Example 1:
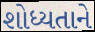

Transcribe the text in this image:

શોધ્યતાને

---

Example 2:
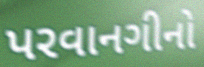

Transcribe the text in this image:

પરવાનગીનો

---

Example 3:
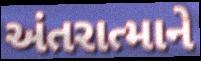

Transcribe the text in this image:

અંતરાત્માને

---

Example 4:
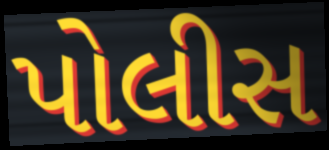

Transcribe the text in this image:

પોલીસ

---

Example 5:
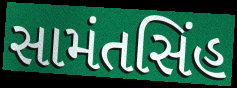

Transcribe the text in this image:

સામંતસિંહ